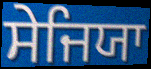
ਸੇਜਿਯਾ